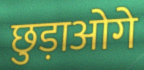
छुड़ाओगे